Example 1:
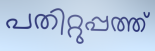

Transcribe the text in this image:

പതിറ്റുപ്പത്ത്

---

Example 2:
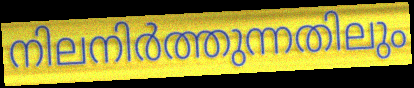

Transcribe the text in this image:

നിലനിർത്തുന്നതിലും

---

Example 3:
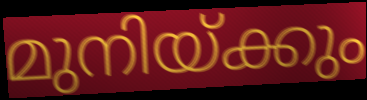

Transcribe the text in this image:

മുനിയ്ക്കും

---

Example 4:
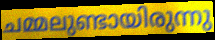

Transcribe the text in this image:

ചമ്മലുണ്ടായിരുന്നു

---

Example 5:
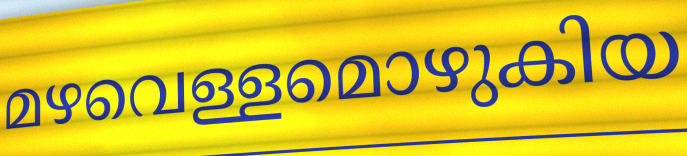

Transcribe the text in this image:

മഴവെള്ളമൊഴുകിയ